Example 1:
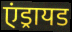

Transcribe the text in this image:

एंड्रायड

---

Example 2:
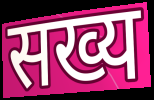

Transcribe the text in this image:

सख्य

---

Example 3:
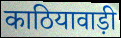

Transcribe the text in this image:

काठियावाड़ी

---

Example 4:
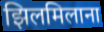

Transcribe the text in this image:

झिलमिलाना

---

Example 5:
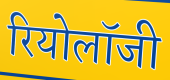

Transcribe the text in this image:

रियोलॉजी